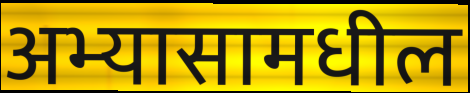
अभ्यासामधील